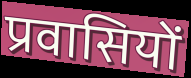
प्रवासियों